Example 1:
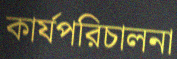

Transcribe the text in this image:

কার্যপরিচালনা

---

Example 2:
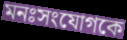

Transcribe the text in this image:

মনঃসংযোগকে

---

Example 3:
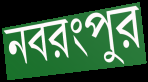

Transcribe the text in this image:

নবরংপুর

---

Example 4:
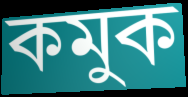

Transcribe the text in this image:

কমুক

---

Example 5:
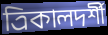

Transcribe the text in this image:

ত্রিকালদর্শী